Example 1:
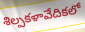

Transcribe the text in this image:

శిల్పకళావేదికలో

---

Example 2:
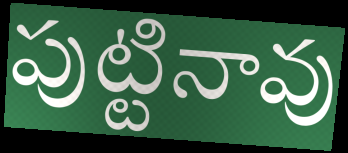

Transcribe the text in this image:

పుట్టినావు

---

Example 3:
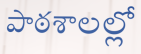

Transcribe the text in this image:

పాఠశాలల్లో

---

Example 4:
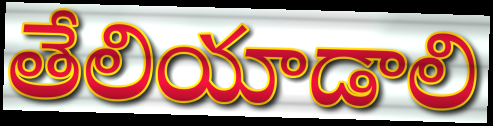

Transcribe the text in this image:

తేలియాడాలి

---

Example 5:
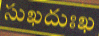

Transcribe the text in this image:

సుఖదుఃఖ